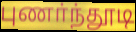
புணர்ந்தூடி